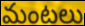
మంటలు